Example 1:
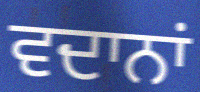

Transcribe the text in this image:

ਵਦਾਨਾਂ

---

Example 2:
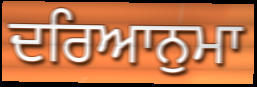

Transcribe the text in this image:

ਦਰਿਆਨੁਮਾ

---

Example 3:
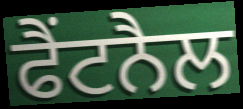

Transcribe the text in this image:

ਫੈਂਟਨੈਲ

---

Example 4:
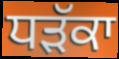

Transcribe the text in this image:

ਧੜੱਕਾ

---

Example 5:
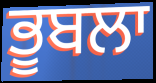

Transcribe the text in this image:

ਭੂਬਲਾ